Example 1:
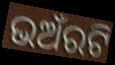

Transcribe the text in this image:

ଭଅଁରଟି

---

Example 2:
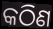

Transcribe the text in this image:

କଠିଣ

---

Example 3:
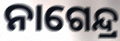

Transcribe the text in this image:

ନାଗେନ୍ଦ୍ର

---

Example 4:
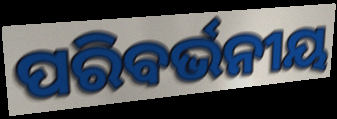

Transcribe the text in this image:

ପରିବର୍ଭନୀୟ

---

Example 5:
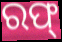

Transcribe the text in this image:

ରଫ୍